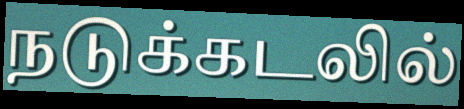
நடுக்கடலில்